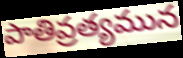
పాతివ్రత్యమున